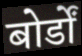
बोर्डों